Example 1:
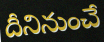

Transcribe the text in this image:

దీనినుంచే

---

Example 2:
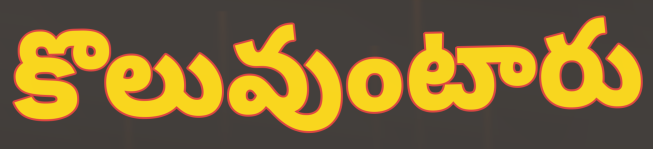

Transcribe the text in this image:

కొలువుంటారు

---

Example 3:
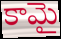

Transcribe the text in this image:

కామై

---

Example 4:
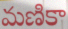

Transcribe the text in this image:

మణికా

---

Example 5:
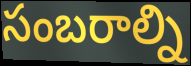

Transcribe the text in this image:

సంబరాల్ని